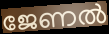
ജേണൽ